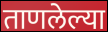
ताणलेल्या